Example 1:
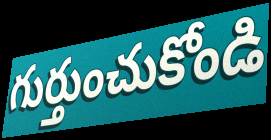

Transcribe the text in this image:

గుర్తుంచుకోండి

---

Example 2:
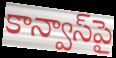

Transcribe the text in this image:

కాన్వాస్‌పై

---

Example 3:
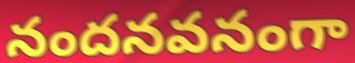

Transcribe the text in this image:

నందనవనంగా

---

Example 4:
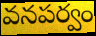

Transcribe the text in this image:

వనపర్వం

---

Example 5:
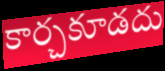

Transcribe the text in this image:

కార్చకూడదు